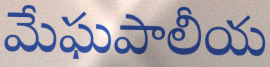
మేఘపాలీయ